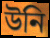
উনি